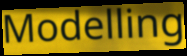
Modelling